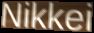
Nikkei